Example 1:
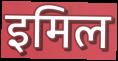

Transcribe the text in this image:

इमिल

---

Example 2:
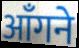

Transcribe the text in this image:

आँगने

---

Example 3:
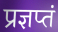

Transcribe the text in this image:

प्रज्ञप्तं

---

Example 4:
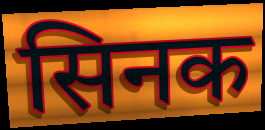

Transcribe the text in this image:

सिनक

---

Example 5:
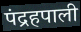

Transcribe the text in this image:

पंद्रहपाली